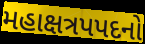
મહાક્ષત્રપપદનો